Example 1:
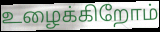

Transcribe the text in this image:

உழைக்கிறோம்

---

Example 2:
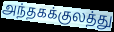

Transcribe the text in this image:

அந்தகக்குலத்து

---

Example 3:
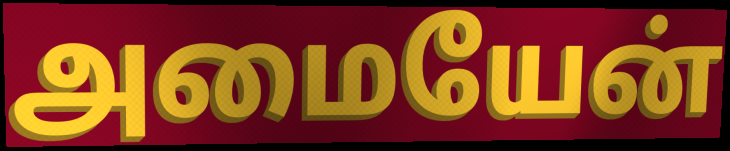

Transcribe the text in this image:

அமையேன்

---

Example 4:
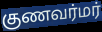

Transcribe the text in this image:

குணவர்மர்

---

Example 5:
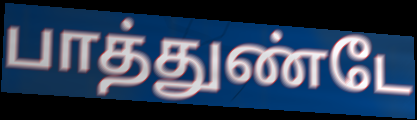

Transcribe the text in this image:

பாத்துண்டே